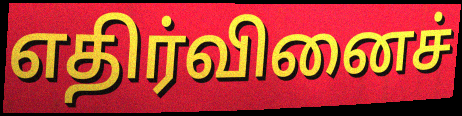
எதிர்வினைச்